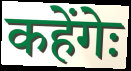
कहेंगेः